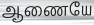
ஆணையே